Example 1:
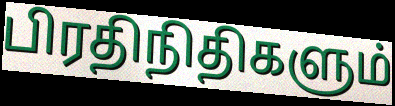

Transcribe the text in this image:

பிரதிநிதிகளும்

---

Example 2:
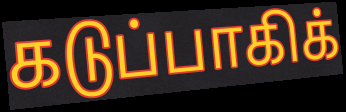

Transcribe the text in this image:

கடுப்பாகிக்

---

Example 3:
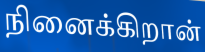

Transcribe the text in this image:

நினைக்கிறான்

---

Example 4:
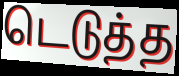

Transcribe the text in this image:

டெடுத்த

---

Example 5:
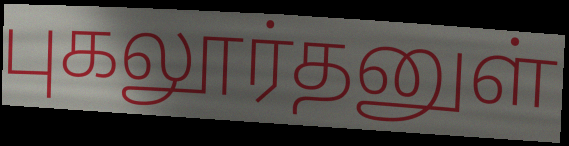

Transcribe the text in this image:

புகலூர்தனுள்